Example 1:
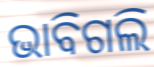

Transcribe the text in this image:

ଭାବିଗଲି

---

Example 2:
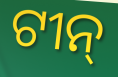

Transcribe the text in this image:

ଟୀନ୍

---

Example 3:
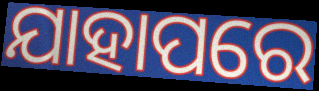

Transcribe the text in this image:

ଯାହାପରେ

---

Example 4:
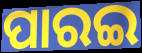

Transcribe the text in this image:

ପାରଇ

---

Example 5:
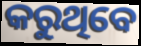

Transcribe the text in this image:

କରୁଥିବେ